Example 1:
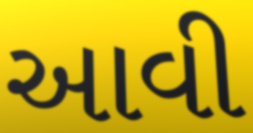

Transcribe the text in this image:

આવી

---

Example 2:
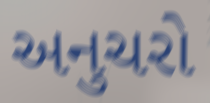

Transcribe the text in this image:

અનુચરો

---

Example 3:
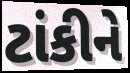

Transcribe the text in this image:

ટાંકીને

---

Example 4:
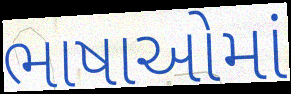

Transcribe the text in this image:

ભાષાઓમાં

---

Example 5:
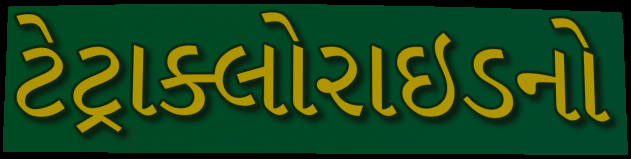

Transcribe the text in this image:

ટેટ્રાક્લોરાઇડનો